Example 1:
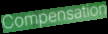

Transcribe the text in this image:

Compensation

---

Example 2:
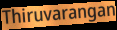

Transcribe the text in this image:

Thiruvarangan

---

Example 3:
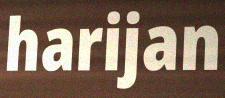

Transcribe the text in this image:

harijan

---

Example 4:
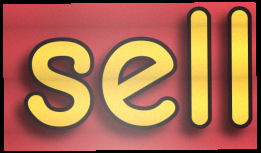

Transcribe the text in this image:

sell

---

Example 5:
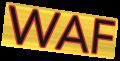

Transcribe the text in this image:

WAF